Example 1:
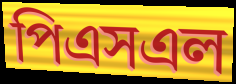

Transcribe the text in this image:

পিএসএল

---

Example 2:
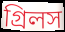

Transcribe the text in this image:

গ্রিলস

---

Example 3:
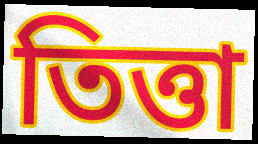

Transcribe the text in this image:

তিত্তা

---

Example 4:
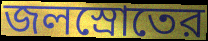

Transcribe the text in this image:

জলস্রোতের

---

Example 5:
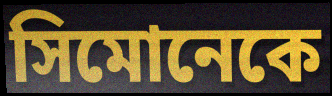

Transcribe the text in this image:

সিমোনেকে